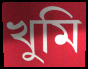
খুমি